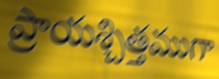
ప్రాయశ్చిత్తముగా